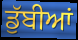
ਡੁੱਬੀਆਂ